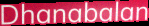
Dhanabalan